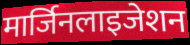
मार्जिनलाइजेशन